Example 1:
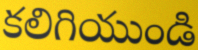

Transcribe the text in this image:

కలిగియుండి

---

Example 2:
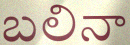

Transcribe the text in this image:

బలినా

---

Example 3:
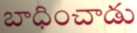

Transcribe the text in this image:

బాధించాడు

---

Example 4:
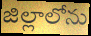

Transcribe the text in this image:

జిల్లాలోను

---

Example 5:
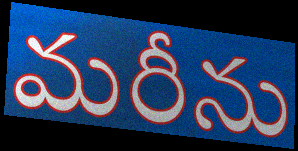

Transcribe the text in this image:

మరీను